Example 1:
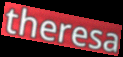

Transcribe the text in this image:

theresa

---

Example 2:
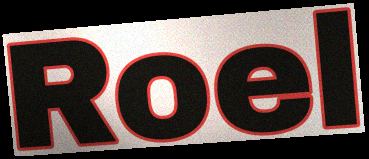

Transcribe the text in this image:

Roel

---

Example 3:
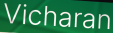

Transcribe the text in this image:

Vicharan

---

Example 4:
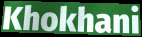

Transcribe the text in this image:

Khokhani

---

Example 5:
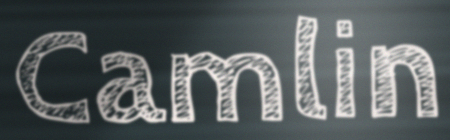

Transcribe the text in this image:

Camlin